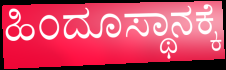
ಹಿಂದೂಸ್ಥಾನಕ್ಕೆ